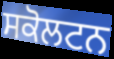
ਸਕੋਲਟਨ